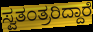
ಸ್ವತಂತ್ರರಿದ್ದಾರೆ